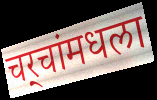
चर्चांमधला